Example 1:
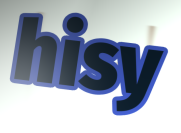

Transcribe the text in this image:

hisy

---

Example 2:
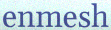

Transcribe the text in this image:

enmesh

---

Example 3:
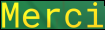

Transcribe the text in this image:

Merci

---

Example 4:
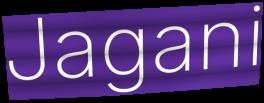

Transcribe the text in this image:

Jagani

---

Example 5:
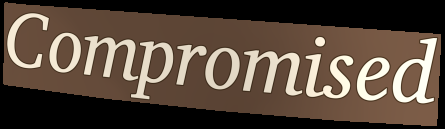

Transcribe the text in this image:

Compromised